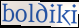
boldiki